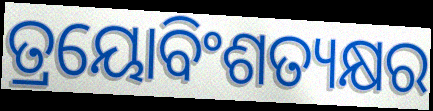
ତ୍ରୟୋବିଂଶତ୍ୟକ୍ଷର